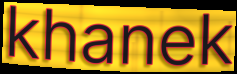
khanek